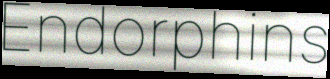
Endorphins